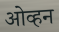
ओव्हन